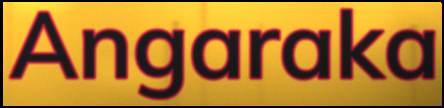
Angaraka